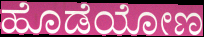
ಹೊಡೆಯೋಣ